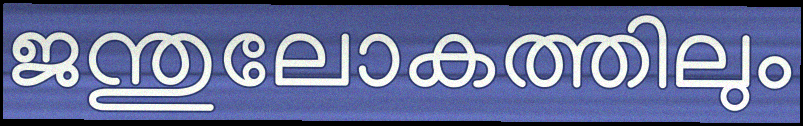
ജന്തുലോകത്തിലും